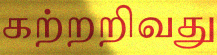
கற்றறிவது